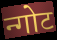
न्गोट